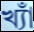
খ্যাঁ